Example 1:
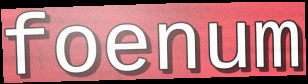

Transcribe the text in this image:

foenum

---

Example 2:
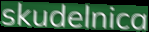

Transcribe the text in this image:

skudelnica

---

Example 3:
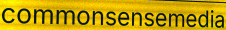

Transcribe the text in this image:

commonsensemedia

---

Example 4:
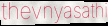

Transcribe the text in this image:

thevnyasathi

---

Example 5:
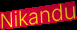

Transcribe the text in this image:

Nikandu